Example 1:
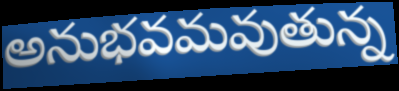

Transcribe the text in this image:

అనుభవమవుతున్న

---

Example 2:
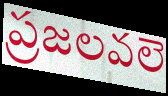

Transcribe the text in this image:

ప్రజలవలె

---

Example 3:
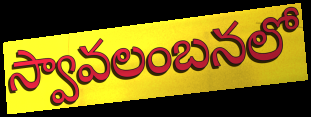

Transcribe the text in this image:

స్వావలంబనలో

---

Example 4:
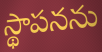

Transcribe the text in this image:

స్థాపనను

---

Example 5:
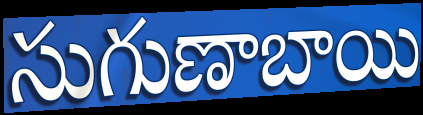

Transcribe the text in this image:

సుగుణాబాయి